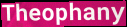
Theophany